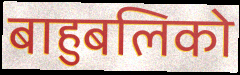
बाहुबलिको